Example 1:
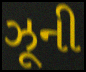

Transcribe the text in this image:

ઝૂની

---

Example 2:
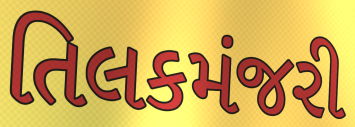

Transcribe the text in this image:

તિલકમંજરી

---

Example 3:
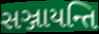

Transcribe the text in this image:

સઞ્જાયન્તિ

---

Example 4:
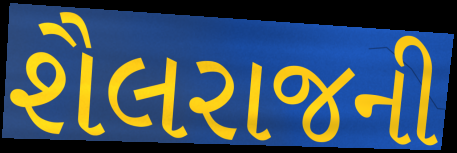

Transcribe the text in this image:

શૈલરાજની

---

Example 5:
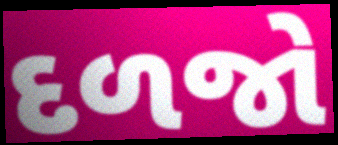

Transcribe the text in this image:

દળજો